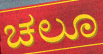
ಚಲೂ